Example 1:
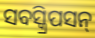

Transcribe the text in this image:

ସବସ୍କ୍ରିପସନ୍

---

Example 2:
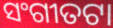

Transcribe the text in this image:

ସଂଗୀତଟା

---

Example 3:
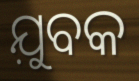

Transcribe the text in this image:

ଯ଼ୁବକ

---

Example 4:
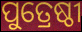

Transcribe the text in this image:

ପୁତ୍ରେଷ୍ଠୀ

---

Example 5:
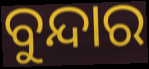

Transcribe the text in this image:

ବୁନ୍ଦାର